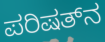
ಪರಿಷತ್‌ನ